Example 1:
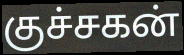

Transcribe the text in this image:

குச்சகன்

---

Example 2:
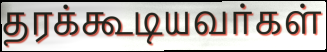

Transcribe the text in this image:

தரக்கூடியவர்கள்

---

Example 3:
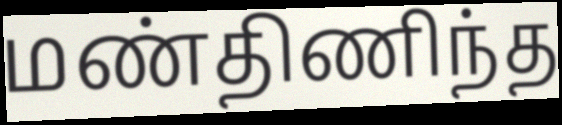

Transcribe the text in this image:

மண்திணிந்த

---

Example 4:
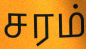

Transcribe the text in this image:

சரம்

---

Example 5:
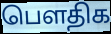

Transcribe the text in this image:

பெளதிக